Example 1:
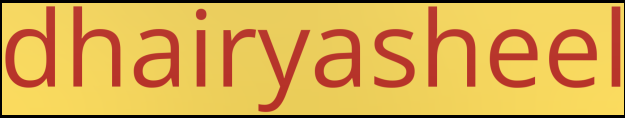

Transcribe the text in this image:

dhairyasheel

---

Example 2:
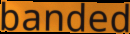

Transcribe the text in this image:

banded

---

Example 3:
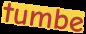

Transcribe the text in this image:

tumbe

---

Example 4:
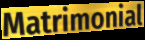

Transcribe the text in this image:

Matrimonial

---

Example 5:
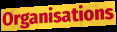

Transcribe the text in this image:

Organisations